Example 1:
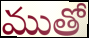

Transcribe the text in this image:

ముతో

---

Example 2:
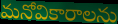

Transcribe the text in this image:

మనోవికారాలను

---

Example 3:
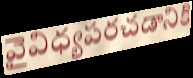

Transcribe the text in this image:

వైవిధ్యపరచడానికి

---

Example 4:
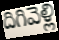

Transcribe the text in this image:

దిగివెళ్లి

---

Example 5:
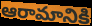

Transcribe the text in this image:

ఆరామానికి